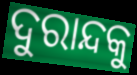
ଦୁରାନ୍ଦକୁ